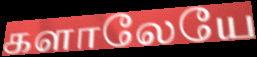
களாலேயே